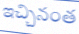
ఇచ్చినంత